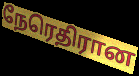
நேரெதிரான